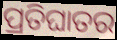
ପ୍ରତିଘାତର